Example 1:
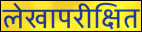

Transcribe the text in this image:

लेखापरीक्षित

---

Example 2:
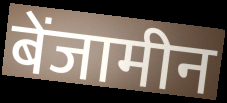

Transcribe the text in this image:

बेंजामीन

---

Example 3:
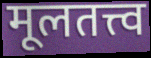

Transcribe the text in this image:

मूलतत्त्व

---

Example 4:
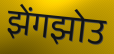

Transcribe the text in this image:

झेंगझोउ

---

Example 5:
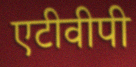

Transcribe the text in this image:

एटीवीपी